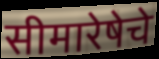
सीमारेषेचे